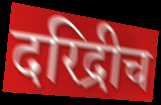
दरिद्रीच